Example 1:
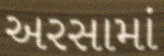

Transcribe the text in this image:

અરસામાં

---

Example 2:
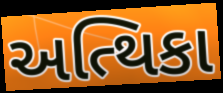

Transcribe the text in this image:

અત્થિકા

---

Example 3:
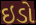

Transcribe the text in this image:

ઇડો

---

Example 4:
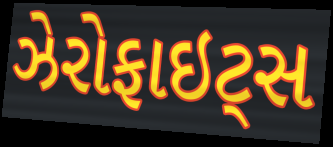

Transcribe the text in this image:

ઝેરોફાઇટ્સ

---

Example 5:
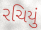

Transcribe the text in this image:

રચિયું